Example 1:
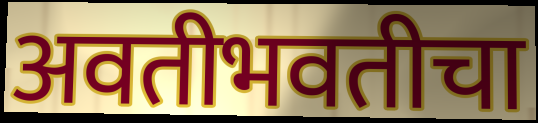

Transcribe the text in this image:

अवतीभवतीचा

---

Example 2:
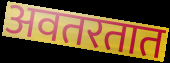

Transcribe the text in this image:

अवतरतात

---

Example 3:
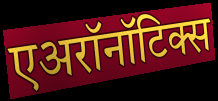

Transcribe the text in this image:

एअरॉनॉटिक्स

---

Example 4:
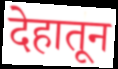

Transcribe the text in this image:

देहातून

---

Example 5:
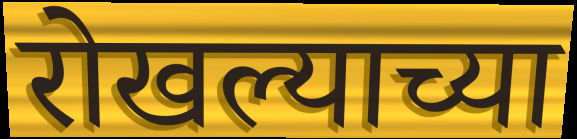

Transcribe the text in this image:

रोखल्याच्या